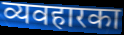
व्यवहारका